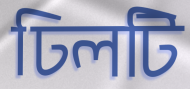
ঢিলটি